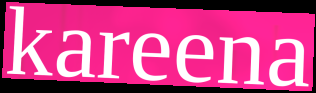
kareena